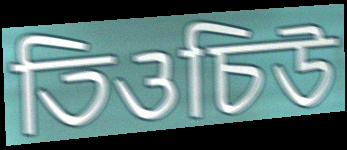
তিওচিউ